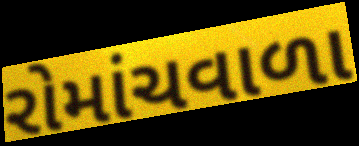
રોમાંચવાળા